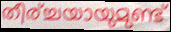
തീര്ച്ചയായുമുണ്ട്